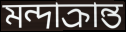
মন্দাক্রান্ত